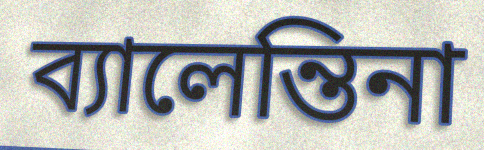
ব্যালেন্তিনা